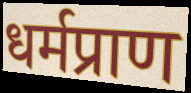
धर्मप्राण